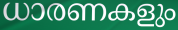
ധാരണകളും